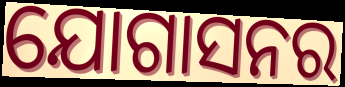
ଯୋଗାସନର